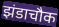
झंडाचौक